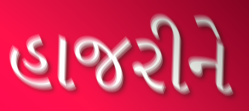
હાજરીને